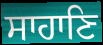
ਸਾਹਾਣਿ